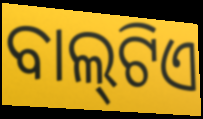
ବାଲ୍‍ଟିଏ